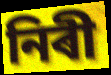
নিৰী